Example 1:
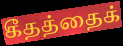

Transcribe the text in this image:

கீதத்தைக்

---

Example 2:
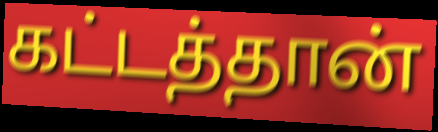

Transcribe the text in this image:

கட்டத்தான்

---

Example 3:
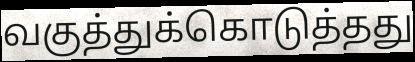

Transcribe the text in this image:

வகுத்துக்கொடுத்தது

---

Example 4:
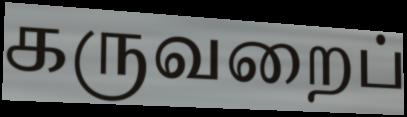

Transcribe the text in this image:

கருவறைப்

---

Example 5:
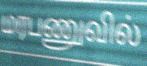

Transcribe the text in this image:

மரபணுவில்